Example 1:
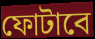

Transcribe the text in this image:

ফোটাবে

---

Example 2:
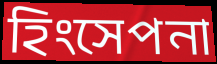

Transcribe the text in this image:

হিংসেপনা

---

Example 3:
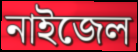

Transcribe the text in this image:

নাইজেল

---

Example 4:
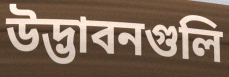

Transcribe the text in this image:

উদ্ভাবনগুলি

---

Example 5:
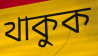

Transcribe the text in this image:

থাকুক